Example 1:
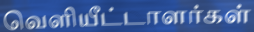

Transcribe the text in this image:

வெளியீட்டாளர்கள்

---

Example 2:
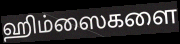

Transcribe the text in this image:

ஹிம்ஸைகளை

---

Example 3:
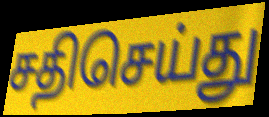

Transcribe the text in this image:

சதிசெய்து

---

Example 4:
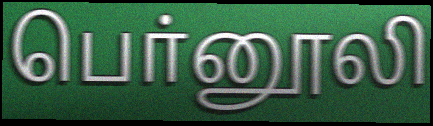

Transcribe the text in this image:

பெர்னூலி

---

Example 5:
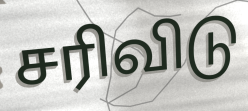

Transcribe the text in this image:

சரிவிடு